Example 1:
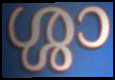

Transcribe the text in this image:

ശ്ശാ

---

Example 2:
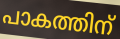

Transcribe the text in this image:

പാകത്തിന്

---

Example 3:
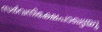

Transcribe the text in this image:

സർവനിക്ഷേപാഖ്യയു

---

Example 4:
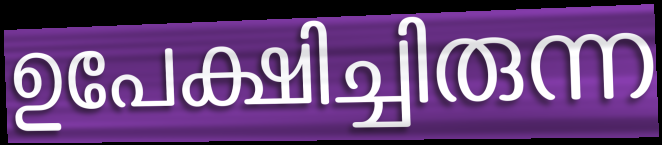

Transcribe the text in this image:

ഉപേക്ഷിച്ചിരുന്ന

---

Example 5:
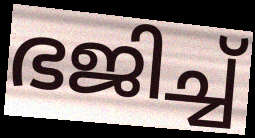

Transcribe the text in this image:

ഭജിച്ച്